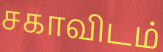
சகாவிடம்